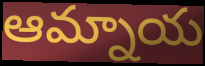
ఆమ్నాయ